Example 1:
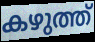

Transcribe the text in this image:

കഴുത്ത്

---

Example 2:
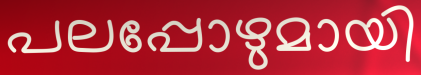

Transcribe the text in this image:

പലപ്പോഴുമായി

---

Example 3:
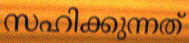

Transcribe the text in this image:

സഹിക്കുന്നത്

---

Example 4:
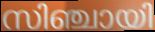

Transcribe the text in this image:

സിഞ്ചായി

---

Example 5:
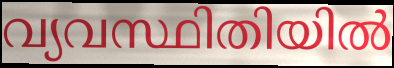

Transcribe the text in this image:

വ്യവസ്ഥിതിയിൽ